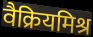
वैक्रियमिश्र